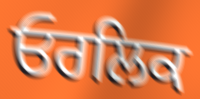
ਓਰਲਿਕ